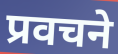
प्रवचने